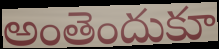
అంతెందుకూ